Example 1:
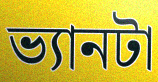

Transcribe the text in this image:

ভ্যানটা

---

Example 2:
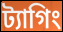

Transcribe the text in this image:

ট্যাগিং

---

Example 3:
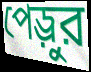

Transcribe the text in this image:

পেড়্রুর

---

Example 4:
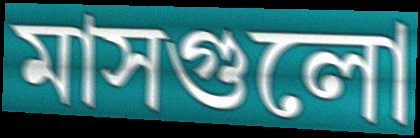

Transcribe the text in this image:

মাসগুলো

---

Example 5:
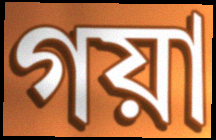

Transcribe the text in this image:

গয়া